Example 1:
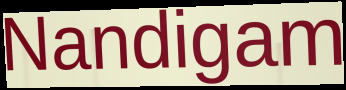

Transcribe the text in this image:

Nandigam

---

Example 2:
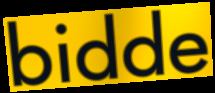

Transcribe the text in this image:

bidde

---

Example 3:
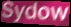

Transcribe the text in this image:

Sydow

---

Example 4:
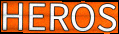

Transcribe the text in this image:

HEROS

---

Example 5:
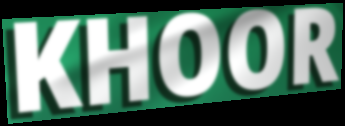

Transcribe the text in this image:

KHOOR